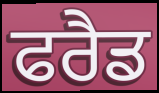
ਫਰੈਡ